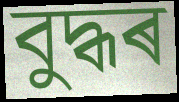
বুদ্ধৰ